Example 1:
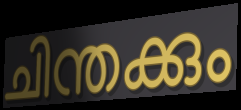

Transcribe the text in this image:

ചിന്തക്കും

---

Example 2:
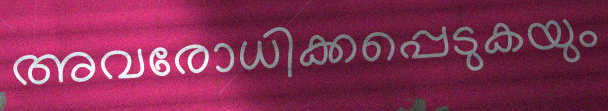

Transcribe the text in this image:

അവരോധിക്കപ്പെടുകയും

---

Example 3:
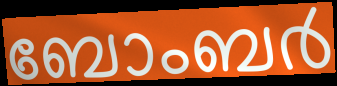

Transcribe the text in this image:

ബോംബർ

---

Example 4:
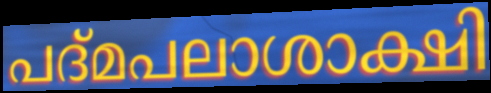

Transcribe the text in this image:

പദ്മപലാശാക്ഷി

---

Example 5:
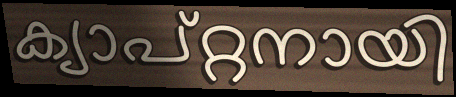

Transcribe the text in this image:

ക്യാപ്റ്റനായി